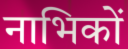
नाभिकों